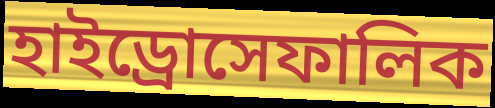
হাইড্রোসেফালিক